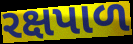
રક્ષપાળ